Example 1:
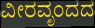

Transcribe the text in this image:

ವೀರವೃಂದದ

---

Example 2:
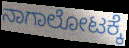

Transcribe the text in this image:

ನಾಗಾಲೋಟಕ್ಕೆ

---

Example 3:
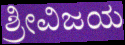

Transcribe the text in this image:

ಶ್ರೀವಿಜಯ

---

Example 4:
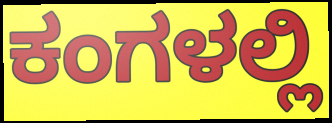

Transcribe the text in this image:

ಕಂಗಳಲ್ಲಿ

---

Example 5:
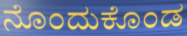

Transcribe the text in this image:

ನೊಂದುಕೊಂಡ